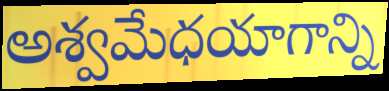
అశ్వమేధయాగాన్ని